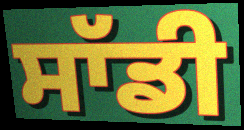
ਸਾੱਡੀ